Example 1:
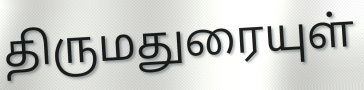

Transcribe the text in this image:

திருமதுரையுள்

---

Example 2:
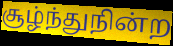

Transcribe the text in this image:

சூழ்ந்துநின்ற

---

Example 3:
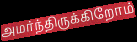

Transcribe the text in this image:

அமர்ந்திருக்கிறோம்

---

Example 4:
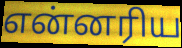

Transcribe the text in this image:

என்னரிய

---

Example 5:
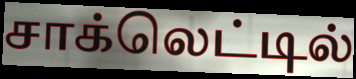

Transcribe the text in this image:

சாக்லெட்டில்